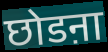
छोडऩा